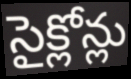
సైక్లోన్లు